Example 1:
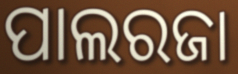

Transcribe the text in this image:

ପାଲରଜା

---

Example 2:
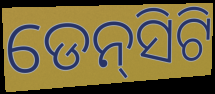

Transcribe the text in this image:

ଡେନ୍‌ସିଟି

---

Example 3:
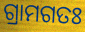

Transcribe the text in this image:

ଗ୍ରାମଗତଃ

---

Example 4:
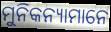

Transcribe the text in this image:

ମୁନିକନ୍ୟାମାନେ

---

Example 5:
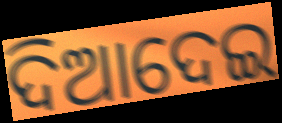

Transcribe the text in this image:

ଦିଆଦେଇ